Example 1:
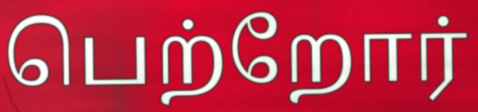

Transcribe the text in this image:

பெற்றோர்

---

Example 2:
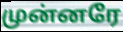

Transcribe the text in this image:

முன்னரே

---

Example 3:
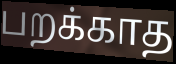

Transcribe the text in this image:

பறக்காத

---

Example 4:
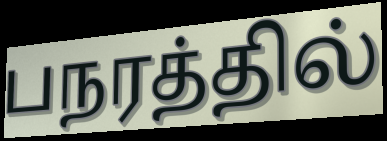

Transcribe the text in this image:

பநரத்தில்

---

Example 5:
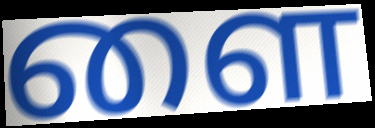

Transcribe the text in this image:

ளை